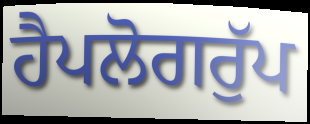
ਹੈਪਲੋਗਰੁੱਪ